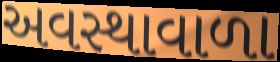
અવસ્થાવાળા